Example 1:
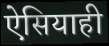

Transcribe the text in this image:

ऐसियाही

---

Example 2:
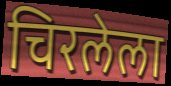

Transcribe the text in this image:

चिरलेला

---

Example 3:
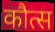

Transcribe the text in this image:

कौत्स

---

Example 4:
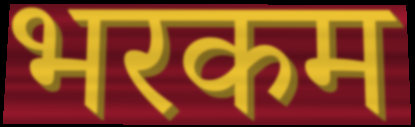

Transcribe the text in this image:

भरकम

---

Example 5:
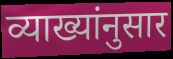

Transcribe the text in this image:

व्याख्यांनुसार